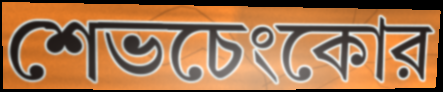
শেভচেংকোর